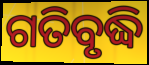
ଗତିବୃଦ୍ଧି